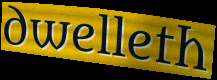
dwelleth